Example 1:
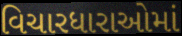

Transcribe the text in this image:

વિચારધારાઓમાં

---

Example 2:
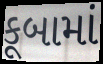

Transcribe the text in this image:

કૂબામાં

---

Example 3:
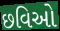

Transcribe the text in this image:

છવિઓ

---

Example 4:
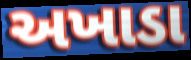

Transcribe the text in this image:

અખાડા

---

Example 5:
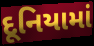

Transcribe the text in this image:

દૂનિયામાં